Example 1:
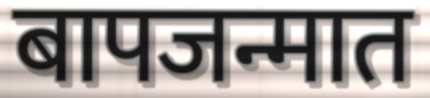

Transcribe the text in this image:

बापजन्मात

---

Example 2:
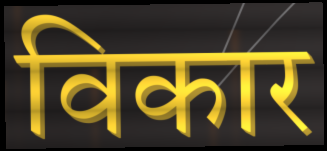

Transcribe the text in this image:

विकार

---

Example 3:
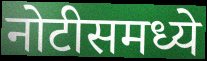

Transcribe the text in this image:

नोटीसमध्ये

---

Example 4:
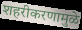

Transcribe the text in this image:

शहरीकरणामुळे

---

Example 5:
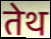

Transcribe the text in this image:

तेथ